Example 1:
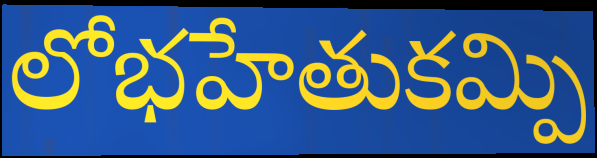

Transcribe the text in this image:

లోభహేతుకమ్పి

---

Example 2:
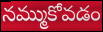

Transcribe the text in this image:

నమ్ముకోవడం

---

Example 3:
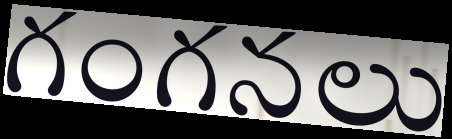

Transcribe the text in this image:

గంగనలు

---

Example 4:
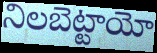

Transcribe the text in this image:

నిలబెట్టాయో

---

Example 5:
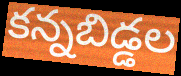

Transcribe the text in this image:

కన్నబిడ్డల